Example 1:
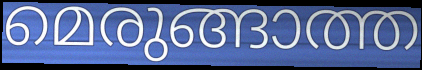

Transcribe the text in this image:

മെരുങ്ങാത്ത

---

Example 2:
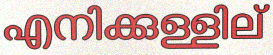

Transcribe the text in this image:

എനിക്കുള്ളില്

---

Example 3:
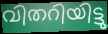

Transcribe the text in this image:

വിതറിയിട്ടു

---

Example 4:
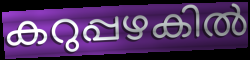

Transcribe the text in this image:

കറുപ്പഴകിൽ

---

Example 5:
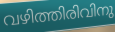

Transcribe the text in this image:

വഴിത്തിരിവിനു